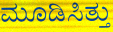
ಮೂಡಿಸಿತ್ತು